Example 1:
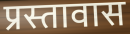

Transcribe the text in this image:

प्रस्तावास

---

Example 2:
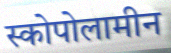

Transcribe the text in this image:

स्कोपोलामीन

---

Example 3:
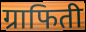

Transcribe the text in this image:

ग्राफिती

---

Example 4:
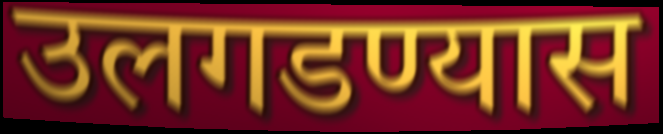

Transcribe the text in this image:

उलगडण्यास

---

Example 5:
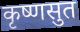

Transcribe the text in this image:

कृष्णसुत